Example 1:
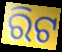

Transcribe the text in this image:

ରିଟ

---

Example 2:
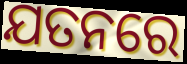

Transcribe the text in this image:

ଯତନରେ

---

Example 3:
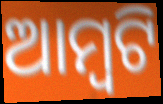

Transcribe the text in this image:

ଆମ୍ୱଟି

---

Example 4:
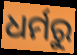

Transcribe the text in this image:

ଧର୍ମରୁ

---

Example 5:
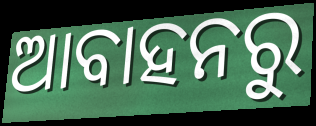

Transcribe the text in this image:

ଆବାହନରୁ